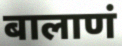
बालाणं